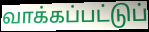
வாக்கப்பட்டுப்